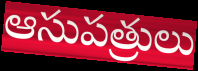
ఆసుపత్రులు